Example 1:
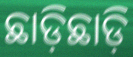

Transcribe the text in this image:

ଛାଡ଼ିଛାଡ଼ି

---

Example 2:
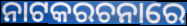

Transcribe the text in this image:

ନାଟକରଚନାରେ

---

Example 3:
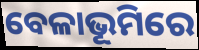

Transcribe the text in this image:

ବେଳାଭୂମିରେ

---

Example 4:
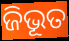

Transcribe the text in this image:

ଜିଭୂତ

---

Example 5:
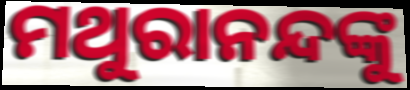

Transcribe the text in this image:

ମଥୁରାନନ୍ଦଙ୍କୁ